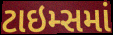
ટાઇમ્સમાં